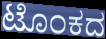
ಟೊಂಕದ